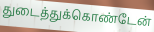
துடைத்துக்கொண்டேன்